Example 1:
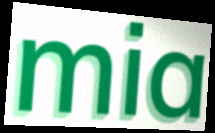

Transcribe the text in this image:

mia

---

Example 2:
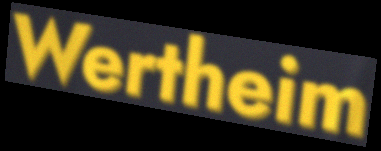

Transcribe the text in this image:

Wertheim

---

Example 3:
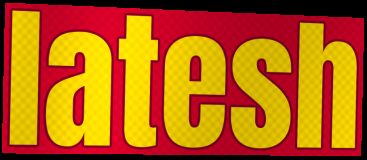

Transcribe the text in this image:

latesh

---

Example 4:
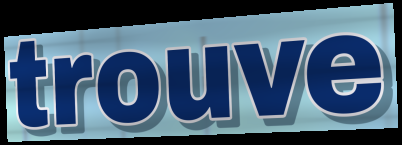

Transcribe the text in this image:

trouve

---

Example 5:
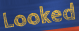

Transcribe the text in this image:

Looked